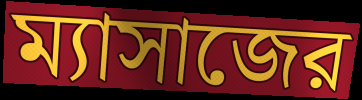
ম্যাসাজের